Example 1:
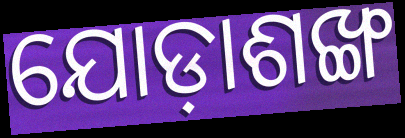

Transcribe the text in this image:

ଯୋଡ଼ାଶଙ୍ଖ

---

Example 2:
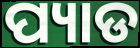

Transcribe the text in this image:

ପ୍ୟାଡ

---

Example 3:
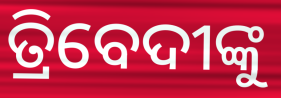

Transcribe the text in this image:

ତ୍ରିବେଦୀଙ୍କୁ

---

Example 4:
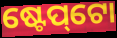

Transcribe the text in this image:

ଷ୍ଟେପ୍‌ଟୋ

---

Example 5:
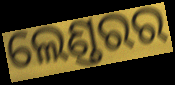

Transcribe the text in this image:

ଲେଣ୍ଡରର